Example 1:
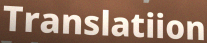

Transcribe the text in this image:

Translatiion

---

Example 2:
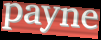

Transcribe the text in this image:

payne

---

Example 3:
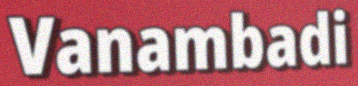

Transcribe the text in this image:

Vanambadi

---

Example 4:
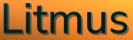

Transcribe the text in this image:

Litmus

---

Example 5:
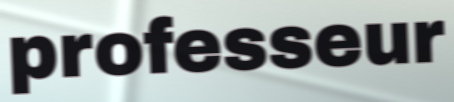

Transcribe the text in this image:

professeur